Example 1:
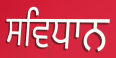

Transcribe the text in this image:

ਸਵਿਧਾਨ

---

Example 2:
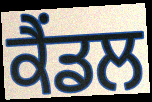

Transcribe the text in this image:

ਕੈਂਡਲ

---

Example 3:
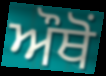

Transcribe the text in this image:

ਔਥੋਂ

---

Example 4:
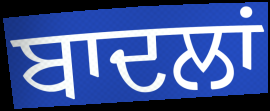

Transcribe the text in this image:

ਬਾਦਲਾਂ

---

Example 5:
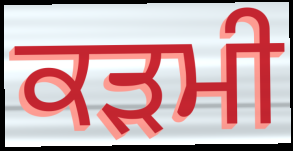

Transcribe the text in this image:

ਕੜਮੀ